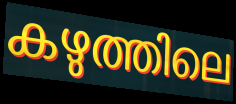
കഴുത്തിലെ